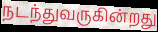
நடந்துவருகின்றது